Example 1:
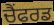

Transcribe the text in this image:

ਚੈਂਫਰਡ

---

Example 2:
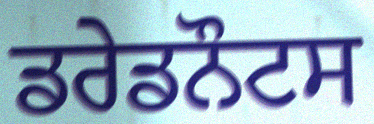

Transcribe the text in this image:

ਡਰੇਡਨੌਟਸ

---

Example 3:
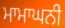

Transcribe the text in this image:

ਮਾਮਾਘਨੀ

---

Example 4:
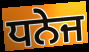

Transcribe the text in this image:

ਧਨੇਜ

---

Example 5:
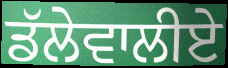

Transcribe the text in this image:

ਡੱਲੇਵਾਲੀਏ